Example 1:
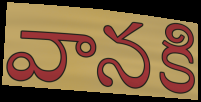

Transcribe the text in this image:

వానకి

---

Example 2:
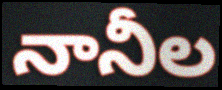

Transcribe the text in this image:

నానీల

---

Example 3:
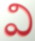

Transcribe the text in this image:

వి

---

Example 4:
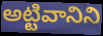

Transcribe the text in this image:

అట్టివానిని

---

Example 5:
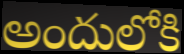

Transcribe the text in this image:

అందులోకి